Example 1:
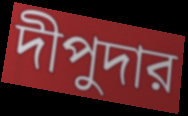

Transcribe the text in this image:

দীপুদার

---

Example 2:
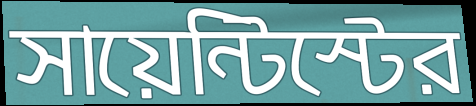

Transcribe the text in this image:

সায়েন্টিস্টের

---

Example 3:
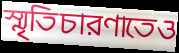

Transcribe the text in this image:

স্মৃতিচারণাতেও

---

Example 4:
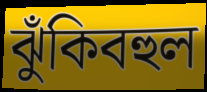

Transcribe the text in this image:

ঝুঁকিবহুল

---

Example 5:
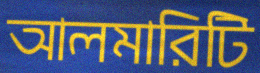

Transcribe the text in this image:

আলমারিটি